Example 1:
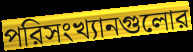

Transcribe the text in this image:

পরিসংখ্যানগুলোর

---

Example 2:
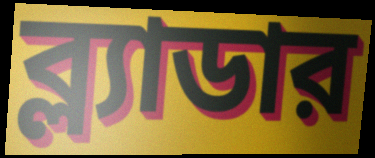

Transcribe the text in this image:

ব্ল্যাডার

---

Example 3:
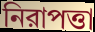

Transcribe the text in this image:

নিরাপত্তা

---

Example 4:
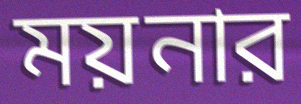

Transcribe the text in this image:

ময়নার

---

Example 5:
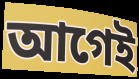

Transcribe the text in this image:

আগেই